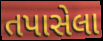
તપાસેલા